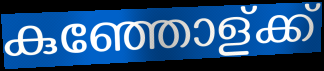
കുഞ്ഞോള്ക്ക്